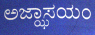
ಅಜ್ಝಾಸಯಂ